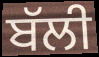
ਬੱਲੀ